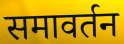
समावर्तन